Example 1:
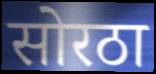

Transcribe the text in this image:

सोरठा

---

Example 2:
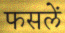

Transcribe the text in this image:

फसलें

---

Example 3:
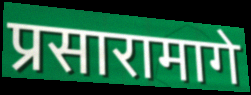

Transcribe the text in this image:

प्रसारामागे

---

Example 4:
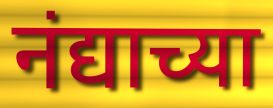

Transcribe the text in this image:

नंद्याच्या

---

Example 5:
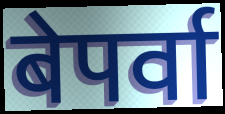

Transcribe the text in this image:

बेपर्वा